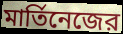
মার্তিনেজের